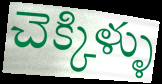
చెక్కిళ్ళు